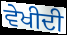
ਵੇਖੀਦੀ